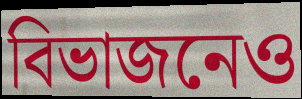
বিভাজনেও